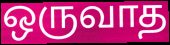
ஒருவாத